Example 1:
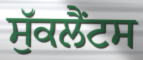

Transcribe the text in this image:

ਸੁੱਕਲੈਂਟਸ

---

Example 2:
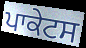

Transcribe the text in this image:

ਪਾਕੇਟਸ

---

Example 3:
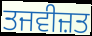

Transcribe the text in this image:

ਤਜਵੀਜ਼ਤ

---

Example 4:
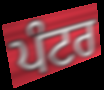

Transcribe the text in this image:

ਪੰਟਰ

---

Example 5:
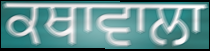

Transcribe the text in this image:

ਕਥਾਵਾਲਾ